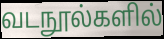
வடநூல்களில்